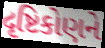
દૃષ્ટિકોણને